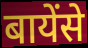
बायेंसे